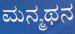
ಮನ್ಮಥನ